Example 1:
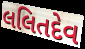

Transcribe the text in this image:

લલિતદેવ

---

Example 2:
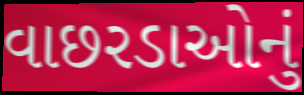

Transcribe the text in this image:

વાછરડાઓનું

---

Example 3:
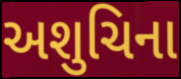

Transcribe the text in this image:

અશુચિના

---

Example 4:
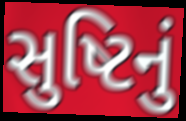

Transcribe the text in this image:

સુષ્ટિનું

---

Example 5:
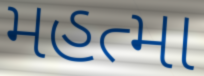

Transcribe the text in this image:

મહત્મા